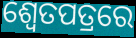
ଶ୍ୱେତପତ୍ରରେ